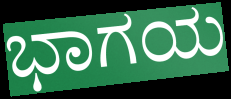
ಭಾಗಯ